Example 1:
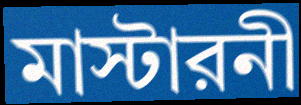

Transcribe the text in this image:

মাস্টারনী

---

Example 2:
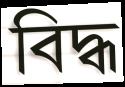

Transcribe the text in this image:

বিদ্ধ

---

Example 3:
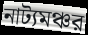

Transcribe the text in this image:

নাট্যমঞ্চর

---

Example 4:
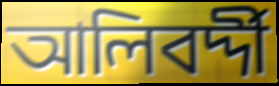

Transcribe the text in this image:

আলিবর্দ্দী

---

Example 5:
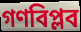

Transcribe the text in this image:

গণবিপ্লব